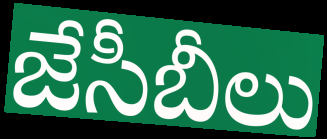
జేసీబీలు